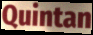
Quintan